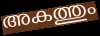
അകത്തും